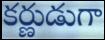
కర్ణుడుగా